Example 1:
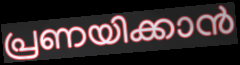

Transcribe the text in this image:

പ്രണയിക്കാൻ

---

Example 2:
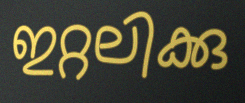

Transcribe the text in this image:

ഇറ്റലിക്കു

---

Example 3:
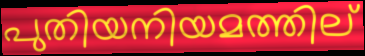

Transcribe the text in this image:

പുതിയനിയമത്തില്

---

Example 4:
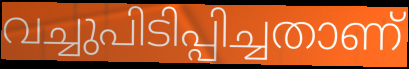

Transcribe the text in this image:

വച്ചുപിടിപ്പിച്ചതാണ്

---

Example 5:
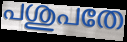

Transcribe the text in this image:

പശുപതേ